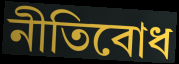
নীতিবোধ